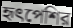
হৃৎপেশির